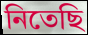
নিতেছি